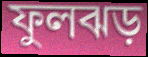
ফুলঝড়